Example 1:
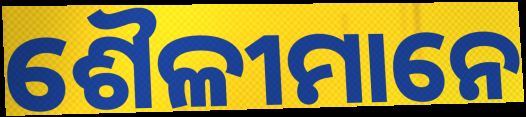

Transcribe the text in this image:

ଶୈଳୀମାନେ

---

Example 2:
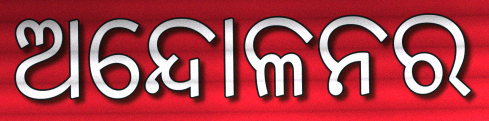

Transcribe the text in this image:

ଅନ୍ଦୋଳନର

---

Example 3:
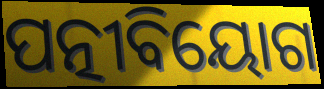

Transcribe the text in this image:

ପତ୍ନୀବିୟୋଗ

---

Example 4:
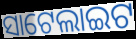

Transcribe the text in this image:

ସାଟେଲାଇଟ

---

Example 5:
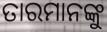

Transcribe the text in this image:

ତାରମାନଙ୍କୁ